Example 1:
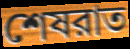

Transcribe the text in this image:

শেষরাত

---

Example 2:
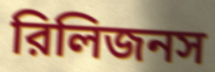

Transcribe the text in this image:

রিলিজনস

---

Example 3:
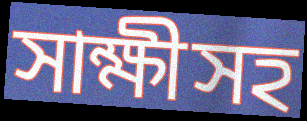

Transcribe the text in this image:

সাক্ষীসহ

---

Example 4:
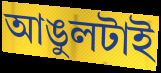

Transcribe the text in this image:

আঙুলটাই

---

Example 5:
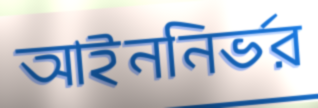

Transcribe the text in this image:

আইননির্ভর